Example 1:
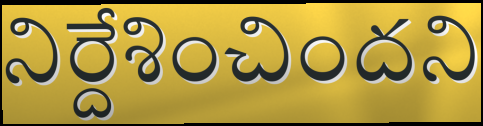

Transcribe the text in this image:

నిర్దేశించిందని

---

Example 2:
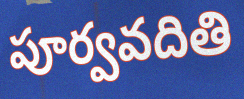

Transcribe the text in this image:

పూర్వవదితి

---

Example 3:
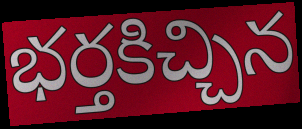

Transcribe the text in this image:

భర్తకిచ్చిన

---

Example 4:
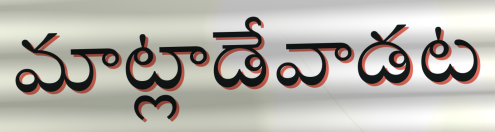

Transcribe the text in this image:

మాట్లాడేవాడట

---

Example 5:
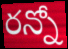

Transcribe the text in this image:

రన్నో